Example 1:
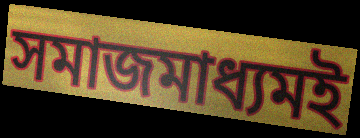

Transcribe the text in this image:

সমাজমাধ্যমই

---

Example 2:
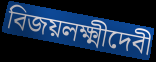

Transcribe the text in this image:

বিজয়লক্ষ্মীদেবী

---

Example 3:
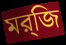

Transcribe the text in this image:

মর্‌জি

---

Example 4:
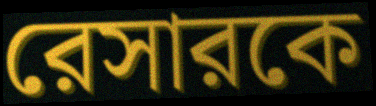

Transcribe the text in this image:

রেসারকে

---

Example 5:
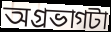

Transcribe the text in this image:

অগ্রভাগটা